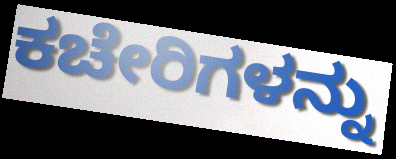
ಕಚೇರಿಗಳನ್ನು